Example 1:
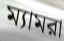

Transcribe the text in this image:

ম্যামরা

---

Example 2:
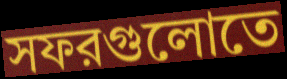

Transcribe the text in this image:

সফরগুলোতে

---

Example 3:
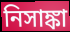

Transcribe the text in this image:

নিসাঙ্কা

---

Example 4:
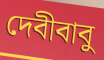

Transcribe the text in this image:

দেবীবাবু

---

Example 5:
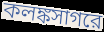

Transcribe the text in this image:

কলঙ্কসাগরে